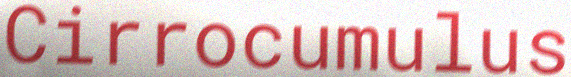
Cirrocumulus